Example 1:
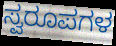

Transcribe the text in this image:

ಸ್ವರೂಪಗಳ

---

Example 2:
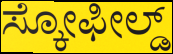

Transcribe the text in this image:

ಸ್ಕೋಫೀಲ್ಡ್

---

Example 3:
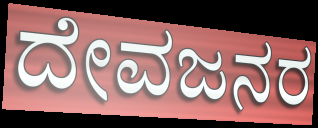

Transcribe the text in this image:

ದೇವಜನರ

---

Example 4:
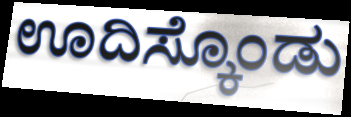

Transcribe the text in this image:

ಊದಿಸ್ಕೊಂಡು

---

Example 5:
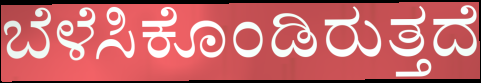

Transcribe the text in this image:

ಬೆಳೆಸಿಕೊಂಡಿರುತ್ತದೆ